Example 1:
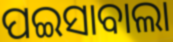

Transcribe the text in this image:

ପଇସାବାଲା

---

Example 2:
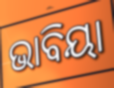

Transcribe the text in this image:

ଭାବିୟା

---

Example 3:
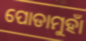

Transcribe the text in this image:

ପୋଡାମୁହାଁ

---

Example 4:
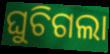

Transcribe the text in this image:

ଘୁଚିଗଲା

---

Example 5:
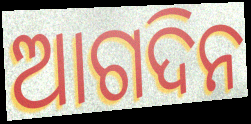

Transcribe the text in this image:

ଆଗଦିନ